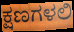
ಕ್ಷಣಗಳಲಿ